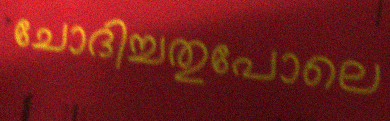
ചോദിച്ചതുപോലെ